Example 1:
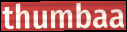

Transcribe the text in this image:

thumbaa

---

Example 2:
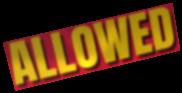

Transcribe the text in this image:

ALLOWED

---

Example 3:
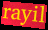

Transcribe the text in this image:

rayil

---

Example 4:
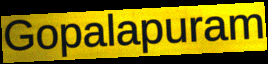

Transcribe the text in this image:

Gopalapuram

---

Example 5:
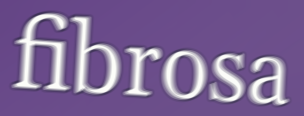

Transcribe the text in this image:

fibrosa